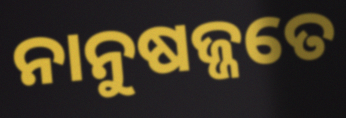
ନାନୁଷଜ୍ଜତେ